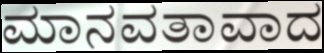
ಮಾನವತಾವಾದ